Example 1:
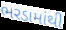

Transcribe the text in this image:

ભરડામાંથી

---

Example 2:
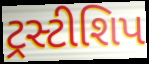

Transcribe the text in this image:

ટ્રસ્ટીશિપ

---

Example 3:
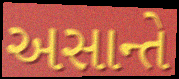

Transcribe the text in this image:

અસાન્તે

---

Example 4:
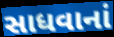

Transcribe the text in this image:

સાધવાનાં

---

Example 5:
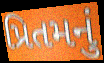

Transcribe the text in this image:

પ્રિતમનું